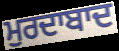
ਮੁਰਦਾਬਾਦ